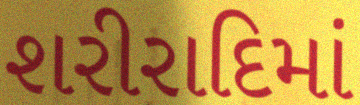
શરીરાદિમાં